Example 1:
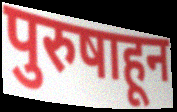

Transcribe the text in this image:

पुरुषाहून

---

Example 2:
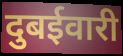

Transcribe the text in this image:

दुबईवारी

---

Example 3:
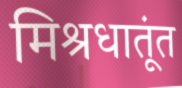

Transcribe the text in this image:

मिश्रधातूंत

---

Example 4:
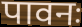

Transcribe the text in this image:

पावनः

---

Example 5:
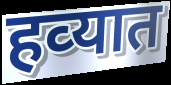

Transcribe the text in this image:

हव्‍यात